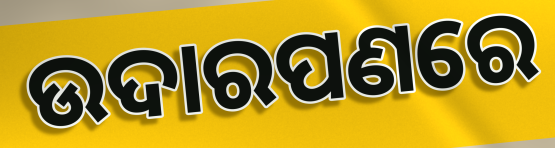
ଉଦାରପଣରେ